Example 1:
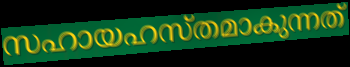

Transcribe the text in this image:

സഹായഹസ്തമാകുന്നത്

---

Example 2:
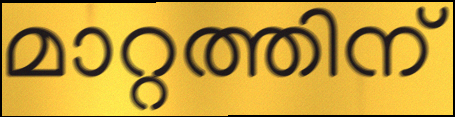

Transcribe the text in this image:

മാറ്റത്തിന്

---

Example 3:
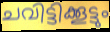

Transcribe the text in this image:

ചവിട്ടിക്കൂട്ടും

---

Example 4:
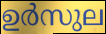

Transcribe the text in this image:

ഉർസുല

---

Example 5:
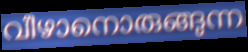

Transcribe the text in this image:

വീഴാനൊരുങ്ങുന്ന